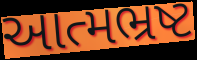
આત્મભ્રષ્ટ